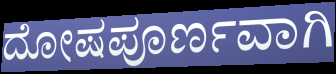
ದೋಷಪೂರ್ಣವಾಗಿ